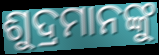
ଶୁଦ୍ରମାନଙ୍କୁ